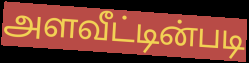
அளவீட்டின்படி